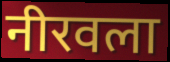
नीरवला